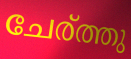
ചേര്ത്തു